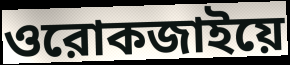
ওরোকজাইয়ে